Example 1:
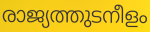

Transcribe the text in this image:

രാജ്യത്തുടനീളം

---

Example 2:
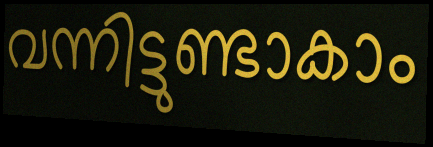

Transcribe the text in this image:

വന്നിട്ടുണ്ടാകാം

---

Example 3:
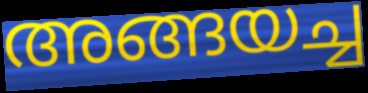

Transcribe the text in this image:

അങ്ങയച്ച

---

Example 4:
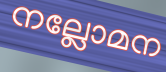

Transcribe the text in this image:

നല്ലോമന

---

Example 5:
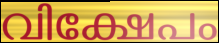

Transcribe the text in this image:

വിക്ഷേപം